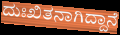
ದುಃಖಿತನಾಗಿದ್ದಾನೆ